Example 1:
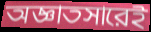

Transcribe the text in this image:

অজ্ঞাতসারেই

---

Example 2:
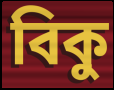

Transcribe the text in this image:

বিকু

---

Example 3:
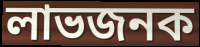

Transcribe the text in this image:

লাভজনক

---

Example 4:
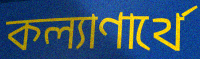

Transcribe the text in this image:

কল্যাণার্থে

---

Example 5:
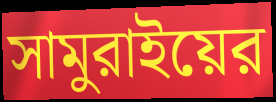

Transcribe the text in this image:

সামুরাইয়ের